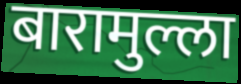
बारामुल्ला